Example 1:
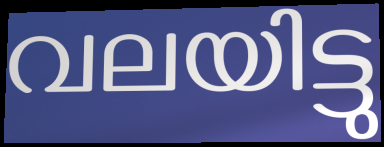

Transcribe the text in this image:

വലയിട്ടു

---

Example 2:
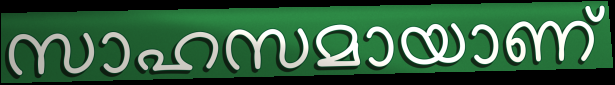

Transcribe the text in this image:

സാഹസമായാണ്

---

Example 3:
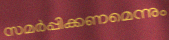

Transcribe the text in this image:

സമർപ്പിക്കണമെന്നും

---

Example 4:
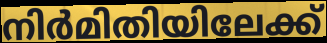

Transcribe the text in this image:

നിർമിതിയിലേക്ക്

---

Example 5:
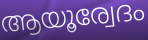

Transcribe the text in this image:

ആയൂര്വേദം